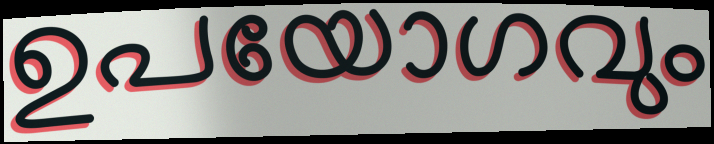
ഉപയോഗവും